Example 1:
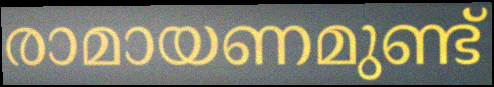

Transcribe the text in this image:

രാമായണമുണ്ട്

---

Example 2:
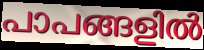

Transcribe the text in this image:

പാപങ്ങളിൽ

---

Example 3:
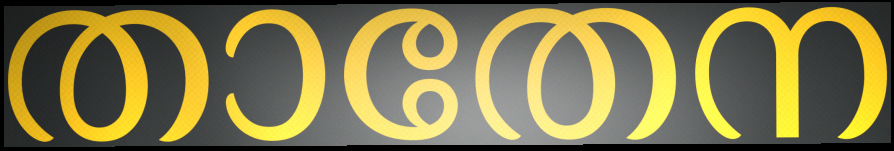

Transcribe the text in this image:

താതേന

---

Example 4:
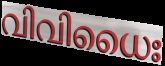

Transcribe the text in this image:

വിവിധൈഃ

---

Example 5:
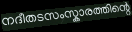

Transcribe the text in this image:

നദീതടസംസ്കാരത്തിന്റെ